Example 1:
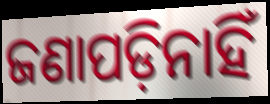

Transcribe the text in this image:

ଜଣାପଡ଼ିନାହିଁ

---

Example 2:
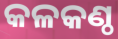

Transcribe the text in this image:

କଳକଣ୍ଠ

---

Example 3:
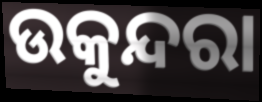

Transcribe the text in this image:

ଉକୁନ୍ଦରା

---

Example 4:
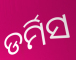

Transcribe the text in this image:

ଡର୍ମିସ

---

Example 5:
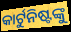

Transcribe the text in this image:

କାର୍ଟୁନିଷ୍ଟଙ୍କୁ